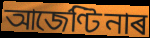
আৰ্জেণ্টিনাৰ